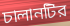
চালানটির